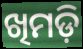
ଖିମଡ଼ି